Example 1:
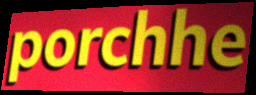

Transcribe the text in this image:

porchhe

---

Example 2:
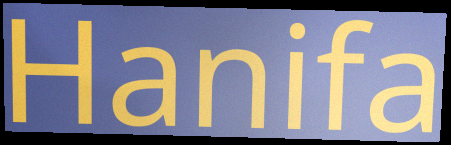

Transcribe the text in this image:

Hanifa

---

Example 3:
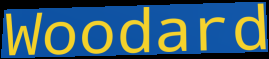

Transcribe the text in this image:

Woodard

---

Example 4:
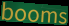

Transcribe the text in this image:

booms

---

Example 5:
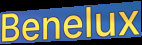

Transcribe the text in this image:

Benelux